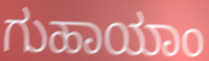
ಗುಹಾಯಾಂ